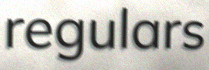
regulars